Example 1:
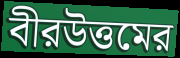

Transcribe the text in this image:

বীরউত্তমের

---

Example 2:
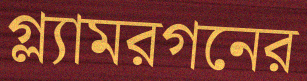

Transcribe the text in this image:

গ্ল্যামরগনের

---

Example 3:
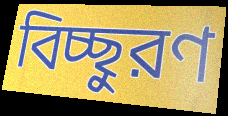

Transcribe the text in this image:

বিচ্ছুরণ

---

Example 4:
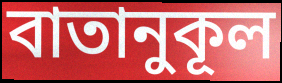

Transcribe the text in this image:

বাতানুকূল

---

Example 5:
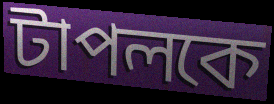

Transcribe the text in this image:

টাপলকে